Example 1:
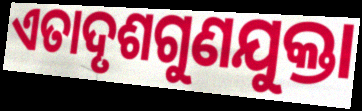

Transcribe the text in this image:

ଏତାଦୃଶଗୁଣଯୁକ୍ତା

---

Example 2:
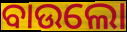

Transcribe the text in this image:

ବାଉଲୋ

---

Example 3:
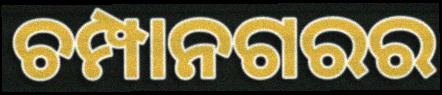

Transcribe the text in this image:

ଚମ୍ପାନଗରର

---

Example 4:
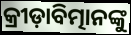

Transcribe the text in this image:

କ୍ରୀଡ଼ାବିତ୍ମାନଙ୍କୁ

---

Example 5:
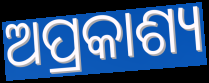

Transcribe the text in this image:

ଅପ୍ରକାଶ୍ୟ